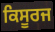
ਕਿਸੂਰਜ